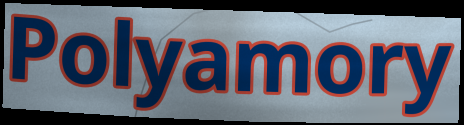
Polyamory